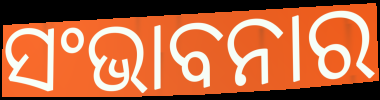
ସଂଭାବନାର